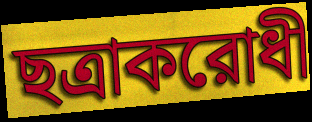
ছত্রাকরোধী